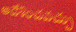
ఆదేశించవచ్చు